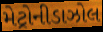
મેટ્રોનીડાઝોલ